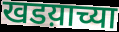
खडय़ाच्या